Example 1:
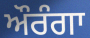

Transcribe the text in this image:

ਔਰੰਗਾ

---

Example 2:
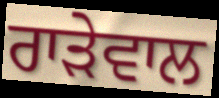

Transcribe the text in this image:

ਰਾੜੇਵਾਲ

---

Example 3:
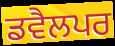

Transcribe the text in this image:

ਡਵੈਲਪਰ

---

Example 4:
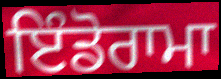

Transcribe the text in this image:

ਇੰਡੋਰਾਮਾ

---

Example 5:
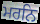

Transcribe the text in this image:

ਮਰਨਿ